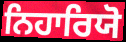
ਨਿਹਾਰਿਯੋ